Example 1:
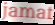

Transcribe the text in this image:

jamat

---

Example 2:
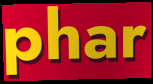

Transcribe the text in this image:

phar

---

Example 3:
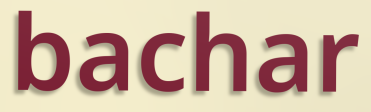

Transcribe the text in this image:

bachar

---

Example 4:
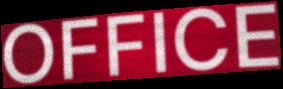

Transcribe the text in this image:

OFFICE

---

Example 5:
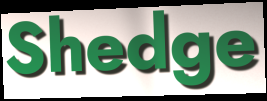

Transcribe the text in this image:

Shedge